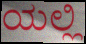
ಯಲ್ಲಿ